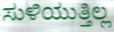
ಸುಳಿಯುತ್ತಿಲ್ಲ